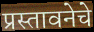
प्रस्तावनेचे